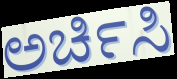
ಅರ್ಚಿಸಿ